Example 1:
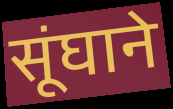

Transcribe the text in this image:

सूंघाने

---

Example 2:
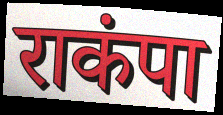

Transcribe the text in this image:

राकंपा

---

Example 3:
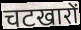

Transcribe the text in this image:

चटखारों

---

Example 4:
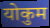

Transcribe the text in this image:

योकुम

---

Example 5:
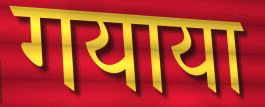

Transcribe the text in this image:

गयाया